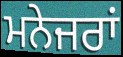
ਮਨੇਜਰਾਂ